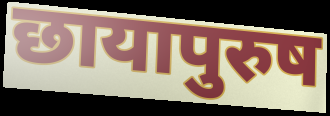
छायापुरुष